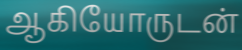
ஆகியோருடன்